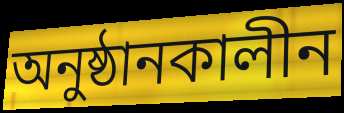
অনুষ্ঠানকালীন